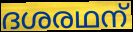
ദശരഥന്